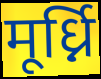
मूर्ध्नि